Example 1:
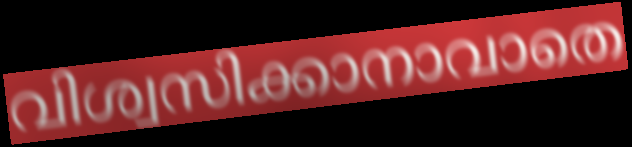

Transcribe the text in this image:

വിശ്വസിക്കാനാവാതെ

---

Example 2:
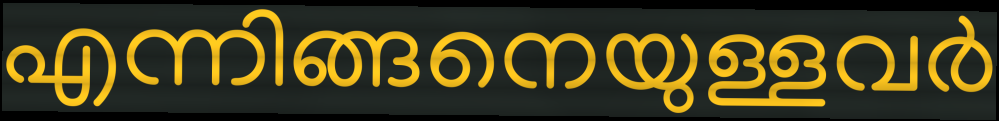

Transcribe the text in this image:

എന്നിങ്ങനെയുള്ളവർ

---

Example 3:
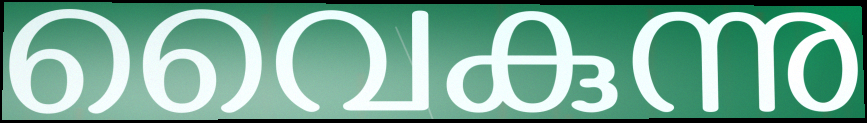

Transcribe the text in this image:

വൈകുന്നു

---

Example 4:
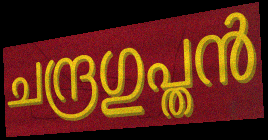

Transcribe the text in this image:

ചന്ദ്രഗുപ്തൻ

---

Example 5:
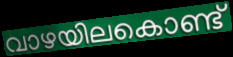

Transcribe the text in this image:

വാഴയിലകൊണ്ട്